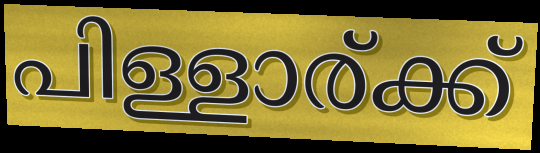
പിള്ളാര്ക്ക്